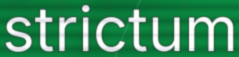
strictum